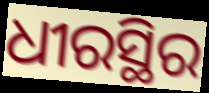
ଧୀରସ୍ଥିର